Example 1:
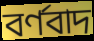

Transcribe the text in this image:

বর্ণবাদ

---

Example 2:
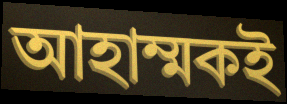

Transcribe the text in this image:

আহাম্মকই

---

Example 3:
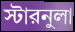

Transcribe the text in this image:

স্টারনুলা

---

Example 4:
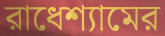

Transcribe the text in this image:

রাধেশ্যামের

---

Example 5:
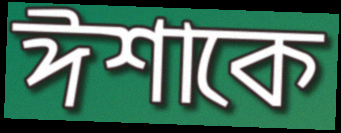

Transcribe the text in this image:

ঈশাকে